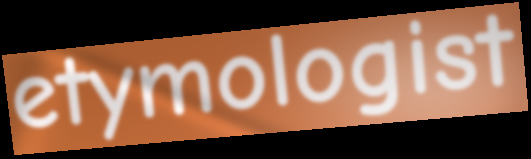
etymologist